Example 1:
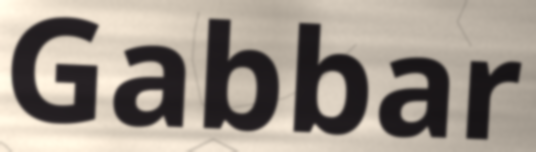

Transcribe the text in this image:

Gabbar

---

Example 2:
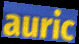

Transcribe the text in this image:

auric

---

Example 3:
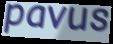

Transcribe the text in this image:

pavus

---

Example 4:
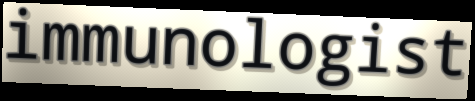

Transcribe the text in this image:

immunologist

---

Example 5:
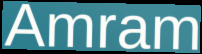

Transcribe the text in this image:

Amram